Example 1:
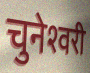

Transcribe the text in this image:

चुनेश्वरी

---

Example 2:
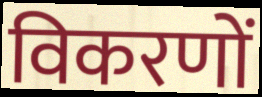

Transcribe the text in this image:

विकरणों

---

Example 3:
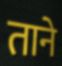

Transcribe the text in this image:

ताने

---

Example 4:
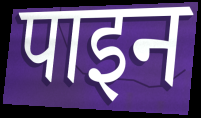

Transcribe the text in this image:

पाइन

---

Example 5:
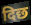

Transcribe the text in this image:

दिछ